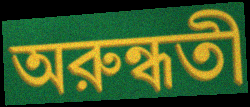
অরুন্ধতী